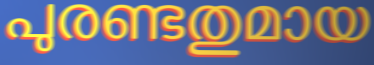
പുരണ്ടതുമായ